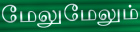
மேலுமேலும்